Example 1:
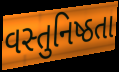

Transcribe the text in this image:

વસ્તુનિષ્ઠતા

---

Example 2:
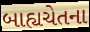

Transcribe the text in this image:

બાહ્યચેતના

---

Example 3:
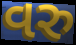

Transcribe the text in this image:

વરુ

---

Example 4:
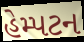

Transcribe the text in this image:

હેમ્પટન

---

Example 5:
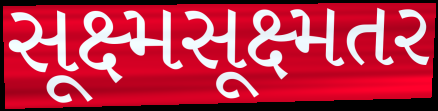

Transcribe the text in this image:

સૂક્ષ્મસૂક્ષ્મતર